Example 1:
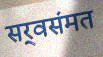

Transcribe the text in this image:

सर्वसंमत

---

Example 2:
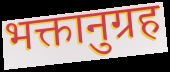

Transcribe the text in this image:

भक्तानुग्रह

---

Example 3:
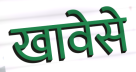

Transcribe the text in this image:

खावेसे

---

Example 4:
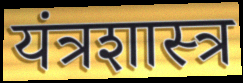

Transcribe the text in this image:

यंत्रशास्त्र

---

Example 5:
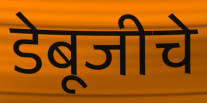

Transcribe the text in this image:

डेबूजीचे